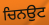
ਚਿਨਉਟ